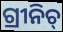
ଗ୍ରୀନିଚ୍